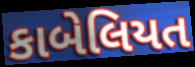
કાબેલિયત